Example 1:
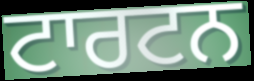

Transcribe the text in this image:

ਟਾਰਟਨ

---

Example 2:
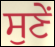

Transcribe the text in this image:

ਸੁਣੇਂ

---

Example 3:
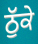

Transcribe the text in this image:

ਠੁੱਕੇ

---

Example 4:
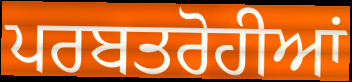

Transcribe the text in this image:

ਪਰਬਤਰੋਹੀਆਂ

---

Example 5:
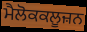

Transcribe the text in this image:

ਮੈਲੋਕਕਲੂਜ਼ਨ